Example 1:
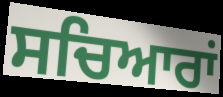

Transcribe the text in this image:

ਸਚਿਆਰਾਂ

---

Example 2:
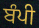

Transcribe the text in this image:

ਬੰਪੀ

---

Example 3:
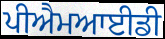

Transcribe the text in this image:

ਪੀਐਮਆਈਡੀ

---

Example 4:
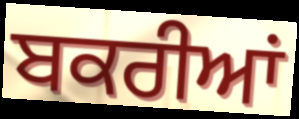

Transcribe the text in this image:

ਬਕਰੀਆਂ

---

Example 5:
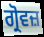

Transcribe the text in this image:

ਗ੍ਰੋਵਜ਼